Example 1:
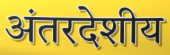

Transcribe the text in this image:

अंतरदेशीय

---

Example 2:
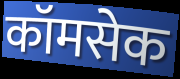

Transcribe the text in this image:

कॉमसेक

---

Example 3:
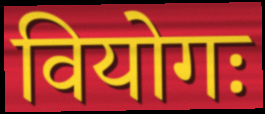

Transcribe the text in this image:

वियोगः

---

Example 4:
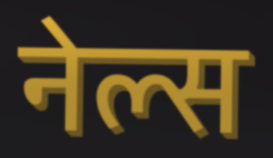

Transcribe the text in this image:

नेल्स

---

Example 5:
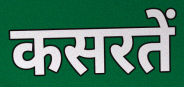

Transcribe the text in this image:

कसरतें